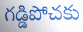
గడ్డిపోచకు